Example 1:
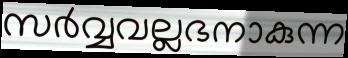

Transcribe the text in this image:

സർവ്വവല്ലഭനാകുന്ന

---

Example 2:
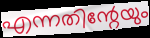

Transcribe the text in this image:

എന്നതിന്റേയും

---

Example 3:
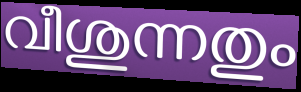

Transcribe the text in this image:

വീശുന്നതും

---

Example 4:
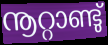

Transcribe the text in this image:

നൂറ്റാണ്ടു്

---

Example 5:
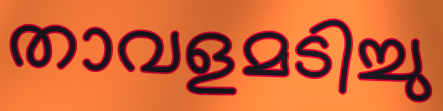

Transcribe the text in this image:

താവളമടിച്ചു